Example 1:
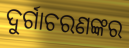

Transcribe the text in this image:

ଦୁର୍ଗାଚରଣଙ୍କର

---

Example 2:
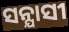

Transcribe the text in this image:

ସନ୍ଯାସୀ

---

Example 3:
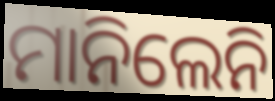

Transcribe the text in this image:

ମାନିଲେନି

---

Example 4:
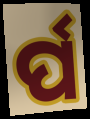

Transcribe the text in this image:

ର୍ପ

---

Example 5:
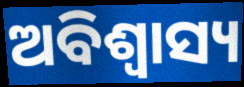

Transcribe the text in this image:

ଅବିଶ୍ୱାସ୍ୟ